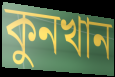
কুনখান